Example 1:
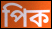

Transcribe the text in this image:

পিক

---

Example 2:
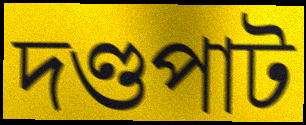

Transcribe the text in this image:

দণ্ডপাট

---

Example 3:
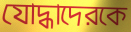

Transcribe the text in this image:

যোদ্ধাদেরকে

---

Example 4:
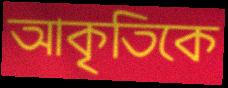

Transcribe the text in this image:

আকৃতিকে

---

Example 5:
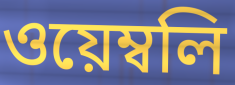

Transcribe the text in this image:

ওয়েম্বলি